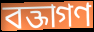
বক্তাগণ